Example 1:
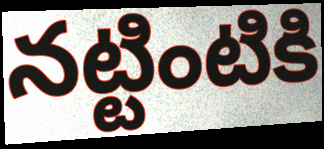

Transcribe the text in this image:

నట్టింటికి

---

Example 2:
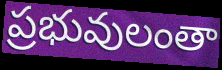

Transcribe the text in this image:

ప్రభువులంతా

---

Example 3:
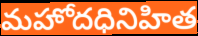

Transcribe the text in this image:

మహోదధినిహిత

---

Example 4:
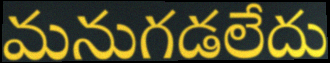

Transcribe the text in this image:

మనుగడలేదు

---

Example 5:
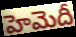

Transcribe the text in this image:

హెమెదీ